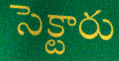
సెక్టారు